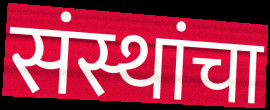
संस्थांचा